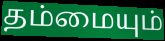
தம்மையும்